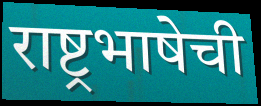
राष्ट्रभाषेची